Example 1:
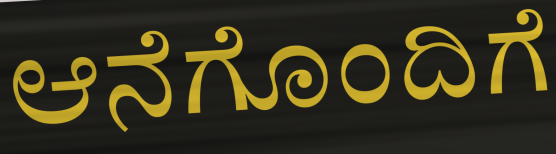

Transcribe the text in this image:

ಆನೆಗೊಂದಿಗೆ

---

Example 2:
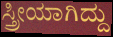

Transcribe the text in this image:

ಸ್ತ್ರೀಯಾಗಿದ್ದು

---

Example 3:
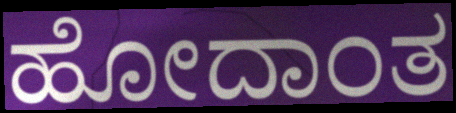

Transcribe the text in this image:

ಹೋದಾಂತ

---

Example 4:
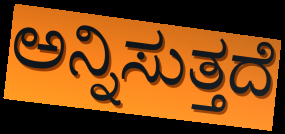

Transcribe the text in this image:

ಅನ್ನಿಸುತ್ತದೆ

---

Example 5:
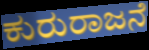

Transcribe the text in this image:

ಕುರುರಾಜನೆ